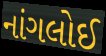
નાંગલોઈ